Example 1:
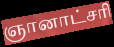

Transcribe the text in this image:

ஞானாட்சரி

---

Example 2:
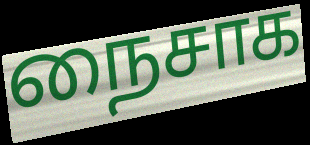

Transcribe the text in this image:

நைசாக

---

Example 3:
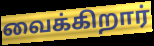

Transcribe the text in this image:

வைக்கிறார்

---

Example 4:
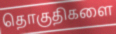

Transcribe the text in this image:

தொகுதிகளை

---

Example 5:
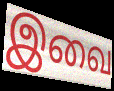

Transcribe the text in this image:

இவை